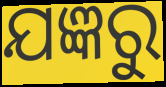
ଯଜ୍ଞରୁ